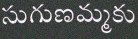
సుగుణమ్మకు